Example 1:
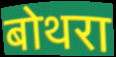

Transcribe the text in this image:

बोथरा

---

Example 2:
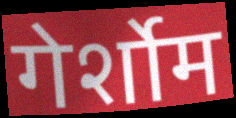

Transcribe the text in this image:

गेर्शोम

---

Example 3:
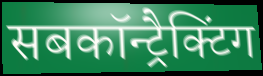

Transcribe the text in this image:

सबकॉन्ट्रैक्टिंग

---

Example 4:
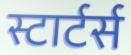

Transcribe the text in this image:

स्टार्टर्स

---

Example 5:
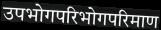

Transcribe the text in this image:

उपभोगपरिभोगपरिमाण